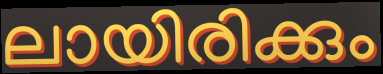
ലായിരിക്കും